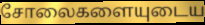
சோலைகளையுடைய